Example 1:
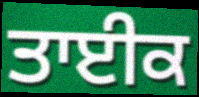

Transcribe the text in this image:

ਤਾਈਕ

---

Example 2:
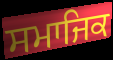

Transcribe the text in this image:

ਸਮਾਜਿਕ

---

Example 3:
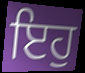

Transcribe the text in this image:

ਇਹੁ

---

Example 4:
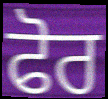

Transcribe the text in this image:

ਫੋਰ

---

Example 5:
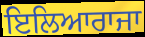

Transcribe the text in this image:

ਇਲਿਆਰਾਜਾ